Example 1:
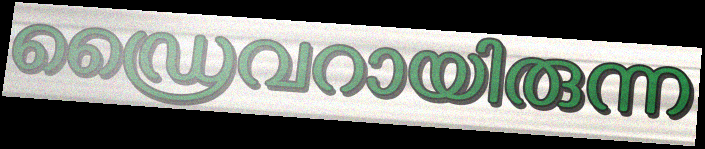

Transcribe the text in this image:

ഡ്രൈവറായിരുന്ന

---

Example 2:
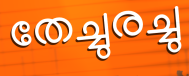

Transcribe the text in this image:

തേച്ചുരച്ചു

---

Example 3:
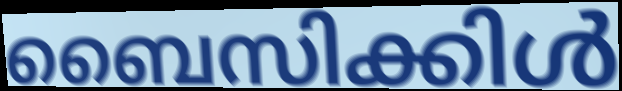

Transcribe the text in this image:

ബൈസിക്കിൾ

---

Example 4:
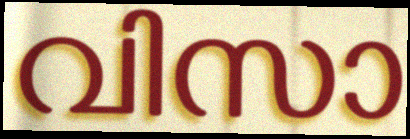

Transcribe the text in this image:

വിസാ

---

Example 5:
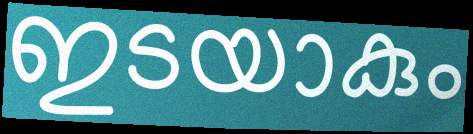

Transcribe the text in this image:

ഇടയാകും